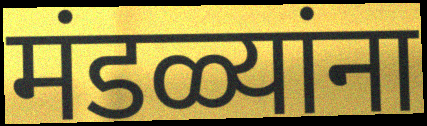
मंडळ्यांना